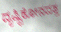
ದೃಷ್ಟಿಕೋನದತ್ತ